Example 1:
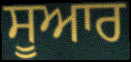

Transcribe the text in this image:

ਸੂਆਰ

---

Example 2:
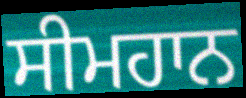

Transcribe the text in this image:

ਸੀਮਹਾਨ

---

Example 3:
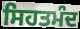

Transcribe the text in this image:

ਸਿਹਤਮੰਦ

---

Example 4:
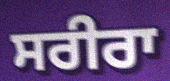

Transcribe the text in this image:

ਸਰੀਰਾ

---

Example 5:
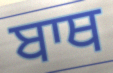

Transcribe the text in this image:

ਬਾਥ